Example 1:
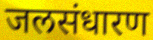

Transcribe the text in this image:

जलसंधारण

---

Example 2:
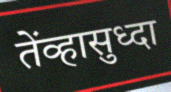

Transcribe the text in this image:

तेंव्हासुध्दा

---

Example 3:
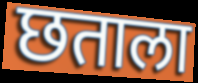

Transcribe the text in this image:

छताला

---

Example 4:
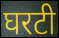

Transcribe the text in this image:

घरटी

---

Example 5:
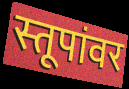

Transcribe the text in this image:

स्तूपांवर